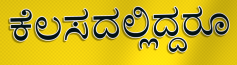
ಕೆಲಸದಲ್ಲಿದ್ದರೂ